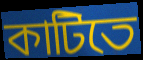
কাটিতে